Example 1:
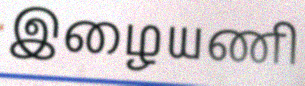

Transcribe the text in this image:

இழையணி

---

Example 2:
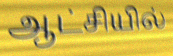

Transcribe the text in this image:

ஆட்சியில்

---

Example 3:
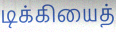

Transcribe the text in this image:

டிக்கியைத்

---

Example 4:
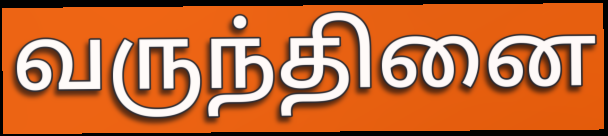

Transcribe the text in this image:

வருந்தினை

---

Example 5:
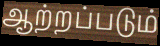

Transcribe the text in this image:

ஆற்றப்படும்